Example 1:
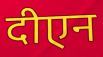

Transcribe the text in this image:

दीएन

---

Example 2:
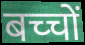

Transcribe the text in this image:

बच्‍चों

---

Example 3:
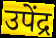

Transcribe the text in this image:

उपेंद्र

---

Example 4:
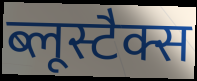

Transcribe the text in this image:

ब्लूस्टैक्स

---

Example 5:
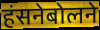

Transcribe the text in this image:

हंसनेबोलने